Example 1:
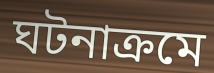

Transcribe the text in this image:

ঘটনাক্ৰমে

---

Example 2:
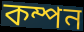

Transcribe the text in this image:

কম্পন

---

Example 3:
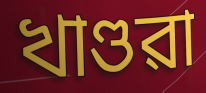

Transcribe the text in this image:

খাণ্ডৱা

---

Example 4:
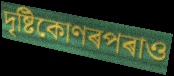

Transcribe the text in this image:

দৃষ্টিকোণৰপৰাও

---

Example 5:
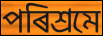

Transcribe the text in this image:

পৰিশ্ৰমে